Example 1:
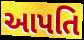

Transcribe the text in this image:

આપતિ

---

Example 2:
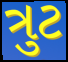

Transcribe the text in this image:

ત્રુટ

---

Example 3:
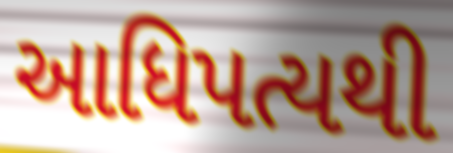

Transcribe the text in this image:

આધિપત્યથી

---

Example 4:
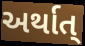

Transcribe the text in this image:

અર્થાત્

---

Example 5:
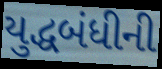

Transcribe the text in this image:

યુદ્ધબંધીની